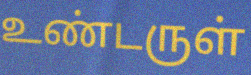
உண்டருள்